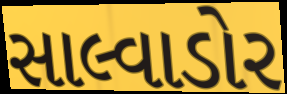
સાલ્વાડોર